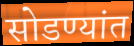
सोडण्यांत